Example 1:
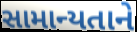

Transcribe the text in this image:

સામાન્યતાને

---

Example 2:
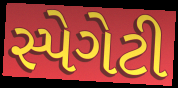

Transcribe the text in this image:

સ્પેગેટી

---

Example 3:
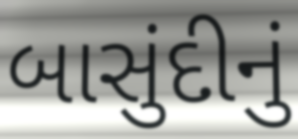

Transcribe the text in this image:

બાસુંદીનું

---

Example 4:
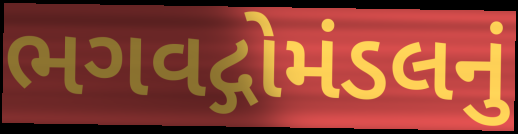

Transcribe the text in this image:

ભગવદ્ગોમંડલનું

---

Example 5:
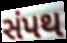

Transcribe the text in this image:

સંપથ